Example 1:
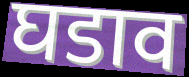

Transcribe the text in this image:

घडाव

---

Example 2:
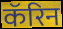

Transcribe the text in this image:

कॅरिन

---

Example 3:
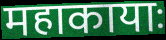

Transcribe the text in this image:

महाकायाः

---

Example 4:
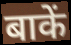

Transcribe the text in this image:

बाकें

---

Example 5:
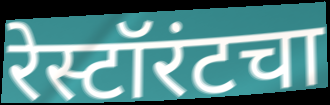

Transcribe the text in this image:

रेस्टॉरंटचा